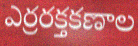
ఎర్రరక్తకణాల